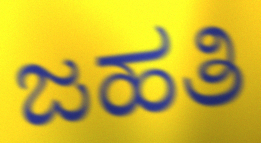
ಜಹತಿ